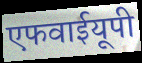
एफवाईयूपी